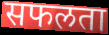
सफलता